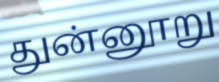
துன்னூறு